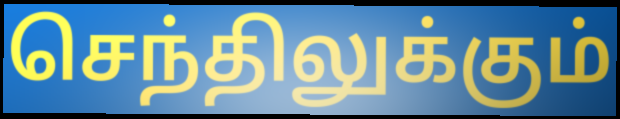
செந்திலுக்கும்